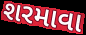
શરમાવા